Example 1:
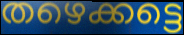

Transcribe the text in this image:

തഴെക്കട്ടെ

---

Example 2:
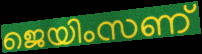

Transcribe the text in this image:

ജെയിംസണ്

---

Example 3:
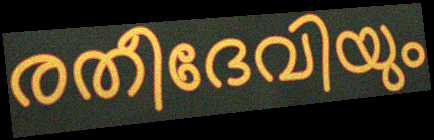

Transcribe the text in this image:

രതീദേവിയും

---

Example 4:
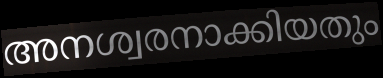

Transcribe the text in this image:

അനശ്വരനാക്കിയതും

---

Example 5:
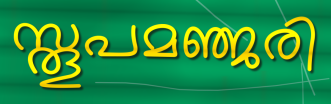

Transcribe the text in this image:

സ്തൂപമഞ്ജരി